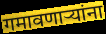
गमावणाऱ्यांना